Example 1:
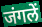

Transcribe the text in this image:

जंगलें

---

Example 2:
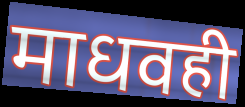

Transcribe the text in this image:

माधवही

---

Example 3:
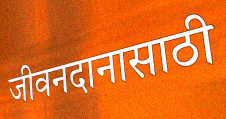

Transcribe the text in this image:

जीवनदानासाठी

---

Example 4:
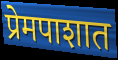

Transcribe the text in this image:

प्रेमपाशात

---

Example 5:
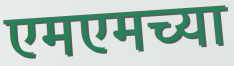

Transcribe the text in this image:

एमएमच्या